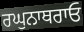
ਰਘੁਨਾਥਰਾਓ